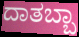
ದಾತಬ್ಬಾ